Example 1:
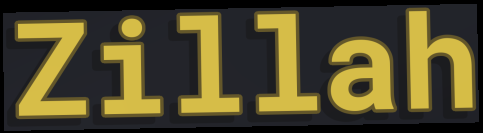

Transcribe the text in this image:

Zillah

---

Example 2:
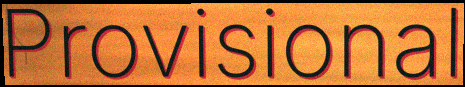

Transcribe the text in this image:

Provisional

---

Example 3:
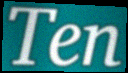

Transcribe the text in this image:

Ten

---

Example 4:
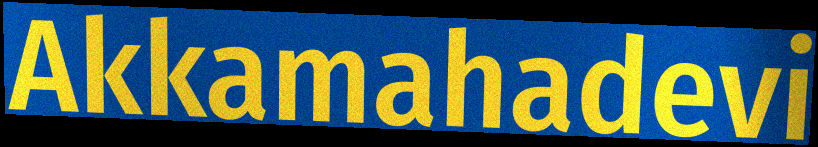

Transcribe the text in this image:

Akkamahadevi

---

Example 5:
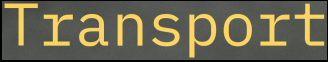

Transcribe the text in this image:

Transport